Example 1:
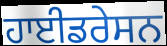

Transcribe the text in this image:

ਹਾਈਡਰੇਸਨ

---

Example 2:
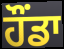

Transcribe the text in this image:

ਹੌਂਡਾ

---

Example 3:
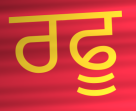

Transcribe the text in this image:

ਰਫੂ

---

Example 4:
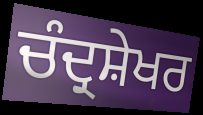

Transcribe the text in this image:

ਚੰਦ੍ਰਸ਼ੇਖਰ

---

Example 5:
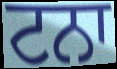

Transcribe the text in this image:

ਟਨਾ